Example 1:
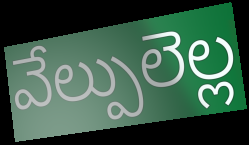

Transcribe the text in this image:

వేల్పులెల్ల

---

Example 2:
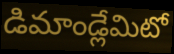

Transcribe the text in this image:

డిమాండ్లేమిటో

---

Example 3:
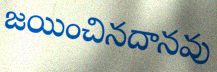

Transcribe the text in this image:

జయించినదానవు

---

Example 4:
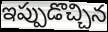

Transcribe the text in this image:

ఇప్పుడొచ్చిన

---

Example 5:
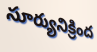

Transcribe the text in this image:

సూర్యునిక్రింద